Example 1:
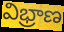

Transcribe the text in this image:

విభ్రాణ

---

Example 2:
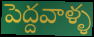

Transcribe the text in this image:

పెద్దవాళ్ళ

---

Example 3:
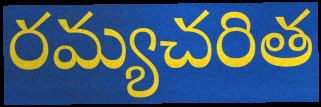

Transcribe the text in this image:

రమ్యచరిత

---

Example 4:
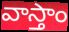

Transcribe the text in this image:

వాస్తాం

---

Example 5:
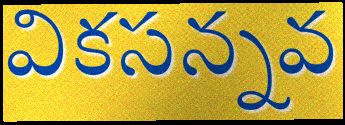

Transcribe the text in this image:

వికసన్నవ